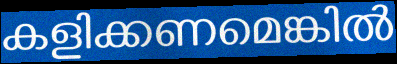
കളിക്കണമെങ്കിൽ